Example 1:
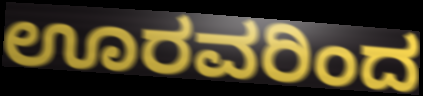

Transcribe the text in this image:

ಊರವರಿಂದ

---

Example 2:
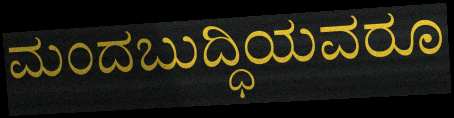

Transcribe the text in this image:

ಮಂದಬುದ್ಧಿಯವರೂ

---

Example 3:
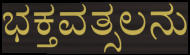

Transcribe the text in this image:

ಭಕ್ತವತ್ಸಲನು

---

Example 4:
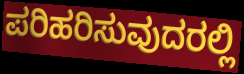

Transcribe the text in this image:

ಪರಿಹರಿಸುವುದರಲ್ಲಿ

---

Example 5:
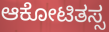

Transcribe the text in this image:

ಆಕೋಟಿತಸ್ಸ